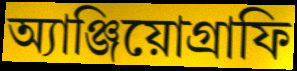
অ্যাঞ্জিয়োগ্রাফি